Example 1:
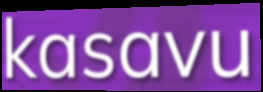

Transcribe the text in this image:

kasavu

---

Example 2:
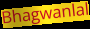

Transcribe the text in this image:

Bhagwanlal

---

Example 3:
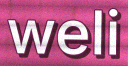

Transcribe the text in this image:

weli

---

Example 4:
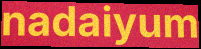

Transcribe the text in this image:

nadaiyum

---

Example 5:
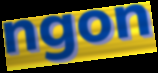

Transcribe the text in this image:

ngon